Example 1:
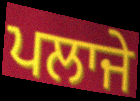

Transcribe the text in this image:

ਪਲਾਜੇ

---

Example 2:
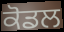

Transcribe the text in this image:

ਕੋਡਲ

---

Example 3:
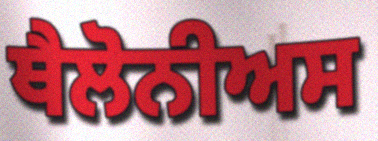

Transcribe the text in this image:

ਥੈਲੋਨੀਅਸ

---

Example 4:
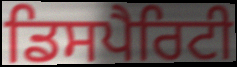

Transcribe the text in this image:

ਡਿਸਪੈਰਿਟੀ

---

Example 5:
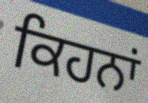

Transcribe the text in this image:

ਕਿਹਨਾਂ